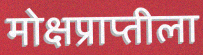
मोक्षप्राप्तीला